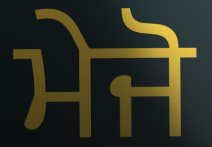
ਮੇਜੋ